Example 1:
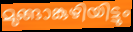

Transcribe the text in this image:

മുങ്ങാങ്കുഴിയിട്ടും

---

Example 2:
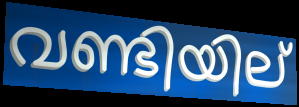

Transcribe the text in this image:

വണ്ടിയില്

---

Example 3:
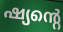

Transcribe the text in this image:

ഷ്യന്റെ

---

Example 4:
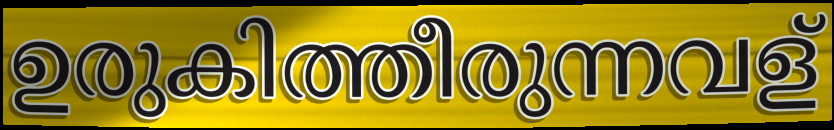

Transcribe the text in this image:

ഉരുകിത്തീരുന്നവള്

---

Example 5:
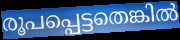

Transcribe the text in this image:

രൂപപ്പെട്ടതെങ്കിൽ